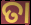
ତା